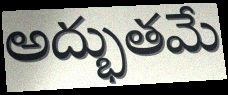
అద్భుతమే